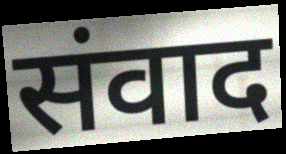
संवाद